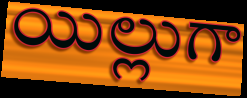
యిల్లుగా